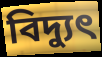
বিদ্যুৎ